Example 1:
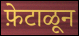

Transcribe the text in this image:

फ़ेटाळून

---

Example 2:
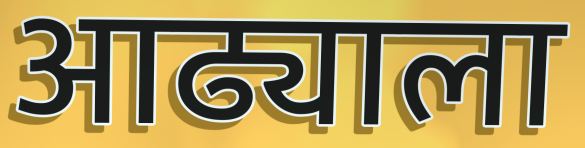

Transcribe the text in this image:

आढ्याला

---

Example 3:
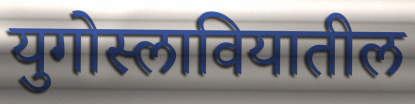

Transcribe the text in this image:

युगोस्लावियातील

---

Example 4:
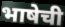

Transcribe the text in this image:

भाषेची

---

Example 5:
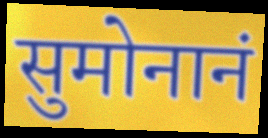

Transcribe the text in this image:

सुमोनानं